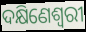
ଦକ୍ଷିଣେଶ୍ଵରୀ